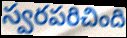
స్వరపరిచింది